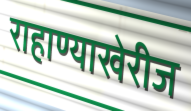
राहाण्याखेरीज